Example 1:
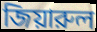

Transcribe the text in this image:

জিয়ারুল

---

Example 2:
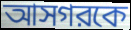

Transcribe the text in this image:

আসগরকে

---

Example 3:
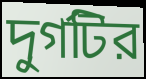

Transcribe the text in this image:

দুর্গটির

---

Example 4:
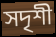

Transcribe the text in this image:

সদৃশী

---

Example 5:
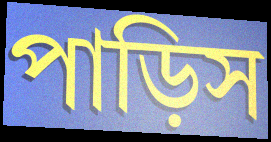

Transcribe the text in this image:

পাড়িস